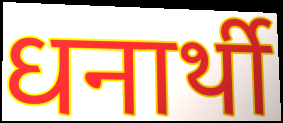
धनार्थी